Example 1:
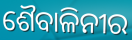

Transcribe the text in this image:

ଶୈବାଳିନୀର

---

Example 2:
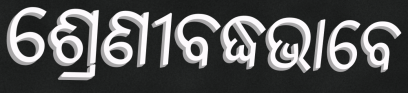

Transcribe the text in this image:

ଶ୍ରେଣୀବଦ୍ଧଭାବେ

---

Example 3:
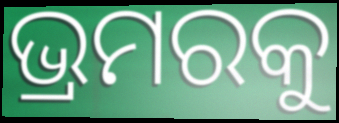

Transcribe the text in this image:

ଭ୍ରମରକୁ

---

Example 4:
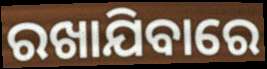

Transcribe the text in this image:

ରଖାଯିବାରେ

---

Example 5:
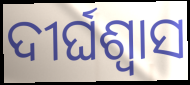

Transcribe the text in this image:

ଦୀର୍ଘଶ୍ଵାସ